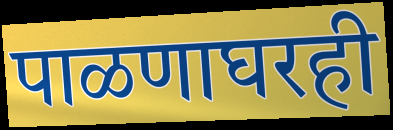
पाळणाघरही